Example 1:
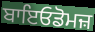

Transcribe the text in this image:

ਬਾਇਓਡੋਮਜ਼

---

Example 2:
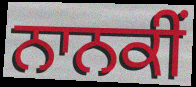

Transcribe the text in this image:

ਨਾਨਕੀਂ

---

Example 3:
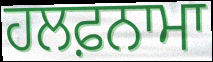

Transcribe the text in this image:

ਹਲਫ਼ਨਾਮਾ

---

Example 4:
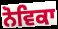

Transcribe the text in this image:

ਨੋਵਿਕਾ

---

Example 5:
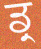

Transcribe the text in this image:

ਡ੍ਰ